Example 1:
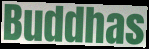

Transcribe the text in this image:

Buddhas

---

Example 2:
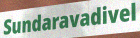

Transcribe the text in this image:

Sundaravadivel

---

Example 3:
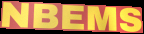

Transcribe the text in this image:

NBEMS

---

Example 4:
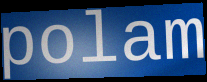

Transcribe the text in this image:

polam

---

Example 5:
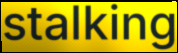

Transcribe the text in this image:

stalking